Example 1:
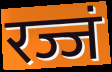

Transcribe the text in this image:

रज्जं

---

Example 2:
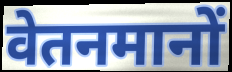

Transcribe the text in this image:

वेतनमानों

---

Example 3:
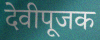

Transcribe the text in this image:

देवीपूजक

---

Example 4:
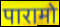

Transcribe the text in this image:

पारामो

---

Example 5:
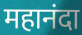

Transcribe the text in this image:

महानंदा